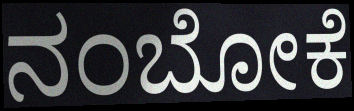
ನಂಬೋಕೆ